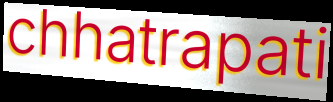
chhatrapati